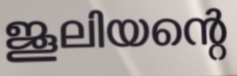
ജൂലിയന്റെ